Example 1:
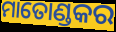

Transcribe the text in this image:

ମାତୋଣ୍ଡକର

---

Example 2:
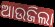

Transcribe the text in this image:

ଆଉଜିଲା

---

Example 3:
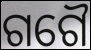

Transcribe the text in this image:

ଗଗୈ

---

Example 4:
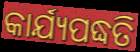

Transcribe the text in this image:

କାର୍ଯ୍ୟପଦ୍ଧତି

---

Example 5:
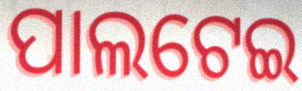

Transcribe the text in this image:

ପାଲଟେଇ